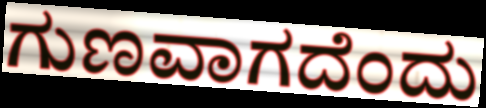
ಗುಣವಾಗದೆಂದು